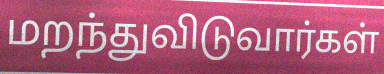
மறந்துவிடுவார்கள்